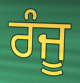
ਰੰਜੂ